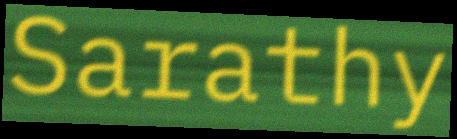
Sarathy